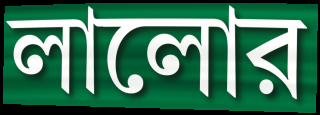
লালোর